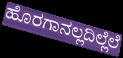
ಹೊರಗಾನಲ್ಲದಿಲ್ಲೆಲೆ